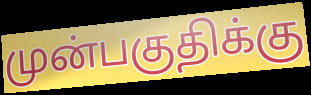
முன்பகுதிக்கு